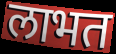
लाभत